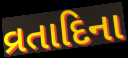
વ્રતાદિના